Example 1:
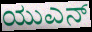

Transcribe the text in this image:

ಯುಎನ್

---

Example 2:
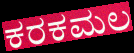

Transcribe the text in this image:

ಕರಕಮಲ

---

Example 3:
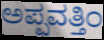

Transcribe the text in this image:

ಅಪ್ಪವತ್ತಿಂ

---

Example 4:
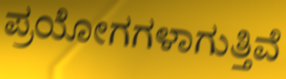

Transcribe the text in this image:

ಪ್ರಯೋಗಗಳಾಗುತ್ತಿವೆ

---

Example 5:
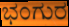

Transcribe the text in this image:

ಭಂಗುರ